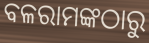
ବଳରାମଙ୍କଠାରୁ